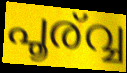
പൂര്വ്വ